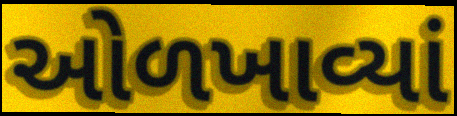
ઓળખાવ્યાં